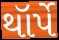
થૉર્પે